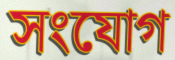
সংযোগ